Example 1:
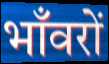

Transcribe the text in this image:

भाँवरों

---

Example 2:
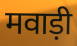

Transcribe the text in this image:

मवाड़ी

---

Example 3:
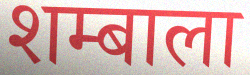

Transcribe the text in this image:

शम्बाला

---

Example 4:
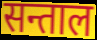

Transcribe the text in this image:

सन्ताल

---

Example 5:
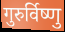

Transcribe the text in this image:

गुरुर्विष्णु